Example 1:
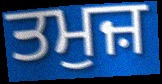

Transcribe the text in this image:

ਤਮੁਜ਼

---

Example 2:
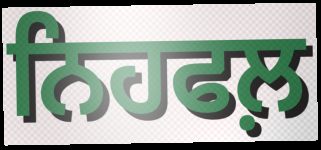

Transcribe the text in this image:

ਨਿਹਫਲ਼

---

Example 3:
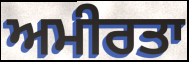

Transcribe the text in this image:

ਅਮੀਰਤਾ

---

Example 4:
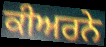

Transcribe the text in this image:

ਕੀਅਰਨੇ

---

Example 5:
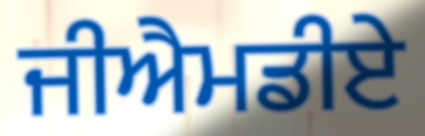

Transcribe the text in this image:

ਜੀਐਮਡੀਏ